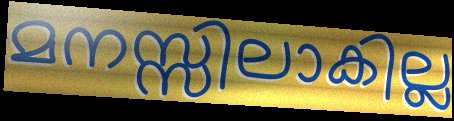
മനസ്സിലാകില്ല